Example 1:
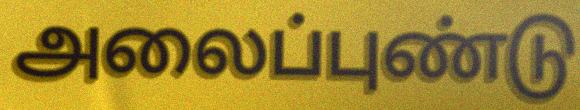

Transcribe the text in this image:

அலைப்புண்டு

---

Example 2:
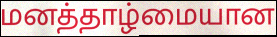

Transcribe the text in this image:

மனத்தாழ்மையான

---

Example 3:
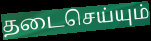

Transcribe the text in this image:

தடைசெய்யும்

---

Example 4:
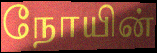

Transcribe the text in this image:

நோயின்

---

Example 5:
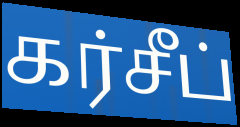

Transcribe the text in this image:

கர்சீப்